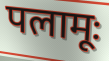
पलामूः